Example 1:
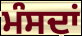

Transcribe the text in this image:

ਮੰਸਦਾਂ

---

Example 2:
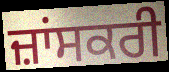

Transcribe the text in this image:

ਜ਼ਾਂਸਕਰੀ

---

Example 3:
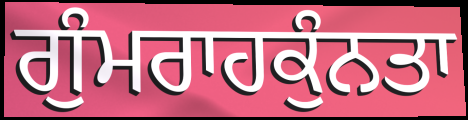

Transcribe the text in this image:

ਗੁੰਮਰਾਹਕੁੰਨਤਾ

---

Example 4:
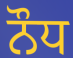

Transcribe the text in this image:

ਨੌਧ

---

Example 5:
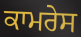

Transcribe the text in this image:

ਕਾਮਰੇਸ